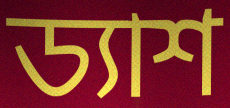
ড্যাশ